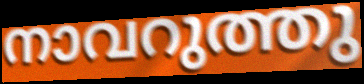
നാവറുത്തു